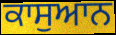
ਕਾਸੁਆਨ